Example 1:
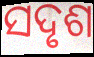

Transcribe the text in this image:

ସଦୃଶ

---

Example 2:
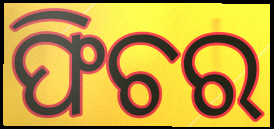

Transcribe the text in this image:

ଫିଚର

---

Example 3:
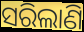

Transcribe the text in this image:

ସରିଲାଣି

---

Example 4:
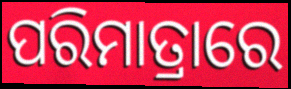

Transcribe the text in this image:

ପରିମାତ୍ରାରେ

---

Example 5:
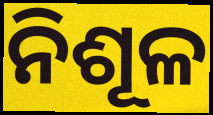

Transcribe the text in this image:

ନିଶୂଳ